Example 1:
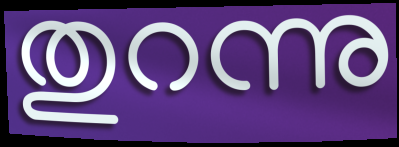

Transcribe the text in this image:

തുറന്നു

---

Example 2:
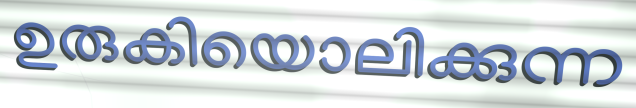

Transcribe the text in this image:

ഉരുകിയൊലിക്കുന്ന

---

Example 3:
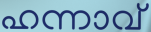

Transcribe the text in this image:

ഹന്നാവ്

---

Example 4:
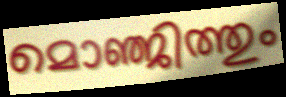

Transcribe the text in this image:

മൊഞ്ജിത്തും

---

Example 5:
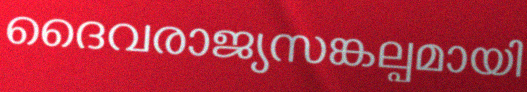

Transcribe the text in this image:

ദൈവരാജ്യസങ്കല്പമായി